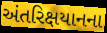
અંતરિક્ષયાનના